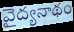
వైద్యనాథం